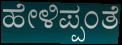
ಹೇಳಿಪ್ಪಂತೆ